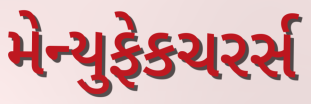
મેન્યુફેકચરર્સ